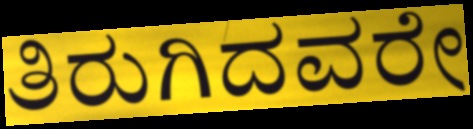
ತಿರುಗಿದವರೇ